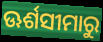
ଊର୍ଶସୀମାରୁ